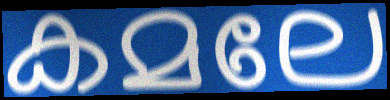
കമലേ